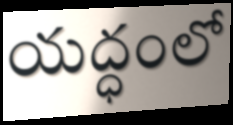
యద్ధంలో